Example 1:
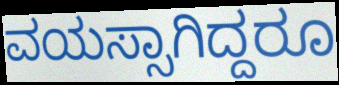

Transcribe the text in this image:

ವಯಸ್ಸಾಗಿದ್ದರೂ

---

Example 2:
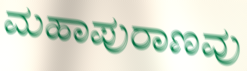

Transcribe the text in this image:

ಮಹಾಪುರಾಣವು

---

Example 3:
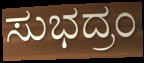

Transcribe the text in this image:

ಸುಭದ್ರಂ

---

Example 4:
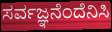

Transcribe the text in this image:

ಸರ್ವಜ್ಞನೆಂದೆನಿಸಿ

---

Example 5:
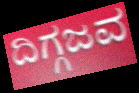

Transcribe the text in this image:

ದಿಗ್ಗಜವ